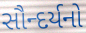
સૌન્દર્યનો